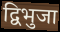
द्विभुजा